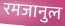
रमजानुल